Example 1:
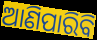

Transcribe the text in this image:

ଆଣିପାରିବି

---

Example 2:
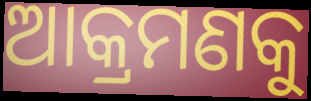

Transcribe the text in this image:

ଆକ୍ରମଣକୁ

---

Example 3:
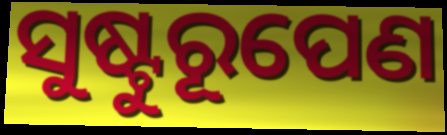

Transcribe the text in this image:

ସୁଷ୍ଟୁରୂପେଣ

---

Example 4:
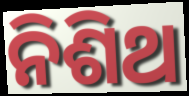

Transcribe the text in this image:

ନିଶିଥ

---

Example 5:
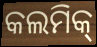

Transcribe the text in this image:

କଲମିକ୍